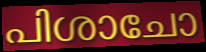
പിശാചോ